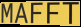
MAFFT